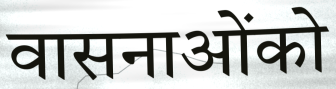
वासनाओंको